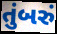
તુંબરું